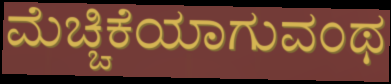
ಮೆಚ್ಚಿಕೆಯಾಗುವಂಥ